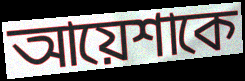
আয়েশাকে